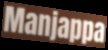
Manjappa